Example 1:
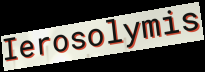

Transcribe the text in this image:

Ierosolymis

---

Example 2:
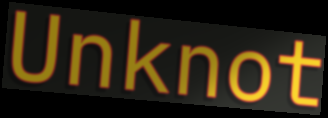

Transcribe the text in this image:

Unknot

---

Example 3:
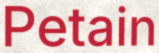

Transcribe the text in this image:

Petain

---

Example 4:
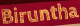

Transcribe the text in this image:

Biruntha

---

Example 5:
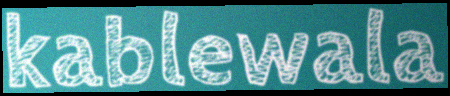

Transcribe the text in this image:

kablewala